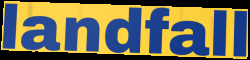
landfall